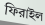
ফিরাইল